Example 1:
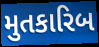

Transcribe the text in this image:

મુતકારિબ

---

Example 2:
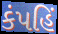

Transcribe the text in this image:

કંપહિં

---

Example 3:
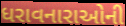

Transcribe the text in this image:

ધરાવનારાઓની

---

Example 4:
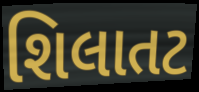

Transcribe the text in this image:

શિલાતટ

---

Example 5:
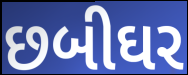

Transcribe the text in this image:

છબીઘર